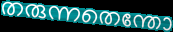
തരുന്നതെന്തോ